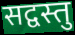
सद्वस्तु